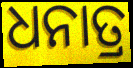
ଧନାତ୍ର